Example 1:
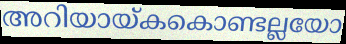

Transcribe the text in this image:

അറിയായ്കകൊണ്ടല്ലയോ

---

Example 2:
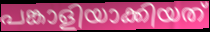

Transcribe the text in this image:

പങ്കാളിയാക്കിയത്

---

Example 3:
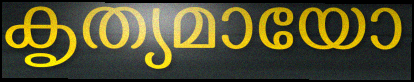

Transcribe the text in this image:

കൃത്യമായോ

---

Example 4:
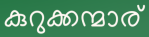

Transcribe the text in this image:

കുറുക്കന്മാര്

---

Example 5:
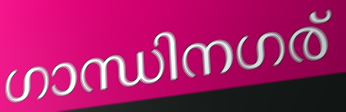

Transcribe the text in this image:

ഗാന്ധിനഗര്